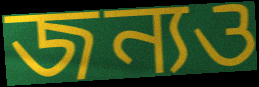
জন্যও